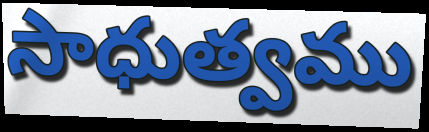
సాధుత్వము